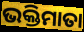
ଭକ୍ତିମାତା